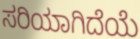
ಸರಿಯಾಗಿದೆಯೆ